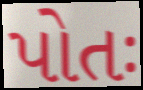
પોતઃ